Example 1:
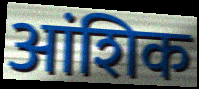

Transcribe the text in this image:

आंशिक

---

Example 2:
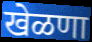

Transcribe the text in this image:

खेळणा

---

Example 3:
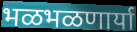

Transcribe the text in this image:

भळभळणार्या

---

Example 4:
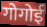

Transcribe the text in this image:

गोगोई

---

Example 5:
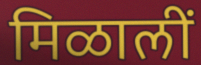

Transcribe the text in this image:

मिळालीं